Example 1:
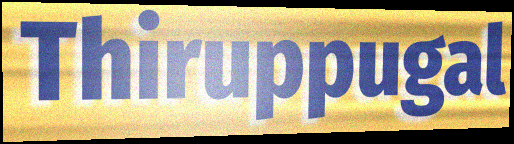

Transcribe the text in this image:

Thiruppugal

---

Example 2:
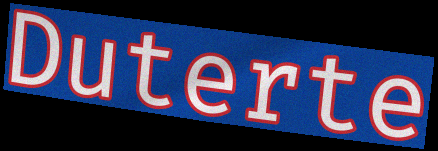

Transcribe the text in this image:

Duterte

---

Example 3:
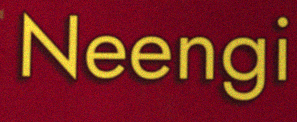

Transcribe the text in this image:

Neengi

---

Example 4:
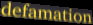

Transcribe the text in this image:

defamation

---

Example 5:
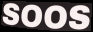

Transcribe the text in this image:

SOOS